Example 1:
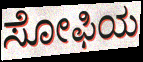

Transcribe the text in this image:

ಸೋಫಿಯ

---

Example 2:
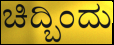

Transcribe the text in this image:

ಚಿದ್ಬಿಂದು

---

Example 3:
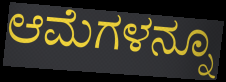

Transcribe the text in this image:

ಆಮೆಗಳನ್ನೂ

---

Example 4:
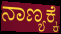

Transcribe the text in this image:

ನಾಣ್ಯಕ್ಕೆ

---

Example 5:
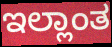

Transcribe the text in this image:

ಇಲ್ಲಾಂತ